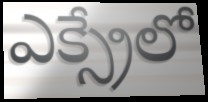
ఎక్స్రేలో